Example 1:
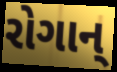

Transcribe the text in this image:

રોગાન્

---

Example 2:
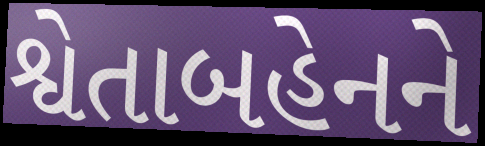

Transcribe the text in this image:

શ્વેતાબહેનને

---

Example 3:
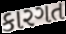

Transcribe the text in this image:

કારગત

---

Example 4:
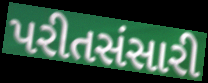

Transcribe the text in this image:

પરીતસંસારી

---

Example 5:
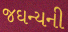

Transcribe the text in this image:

જઘન્યની